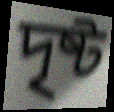
দৃষ্ট